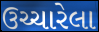
ઉચ્ચારેલા